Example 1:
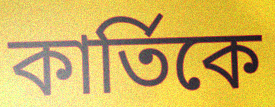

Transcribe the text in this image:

কাৰ্তিকে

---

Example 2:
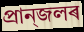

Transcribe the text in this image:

প্ৰান্জলৰ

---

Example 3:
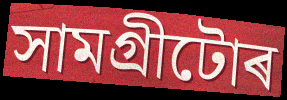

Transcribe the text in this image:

সামগ্ৰীটোৰ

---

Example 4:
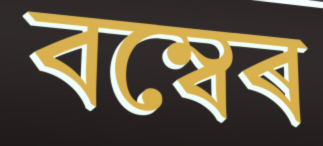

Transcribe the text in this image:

বম্বেৰ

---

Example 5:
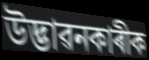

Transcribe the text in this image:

উদ্ভাৱনকাৰীক